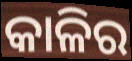
କାଳିର